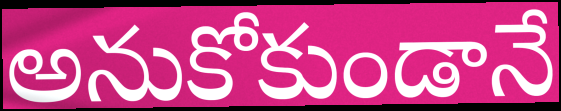
అనుకోకుండానే